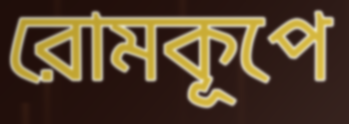
রোমকূপে